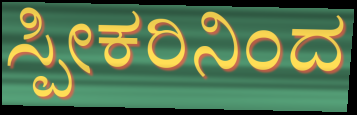
ಸ್ಪೀಕರಿನಿಂದ